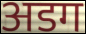
अडग